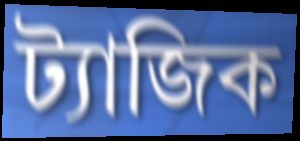
ট্যাজিক